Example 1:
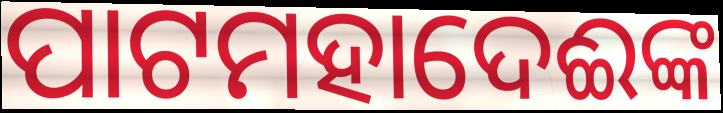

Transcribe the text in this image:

ପାଟମହାଦେଈଙ୍କ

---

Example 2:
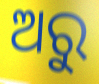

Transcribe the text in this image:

ଅରୁ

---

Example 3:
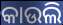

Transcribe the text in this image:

କାଉଲି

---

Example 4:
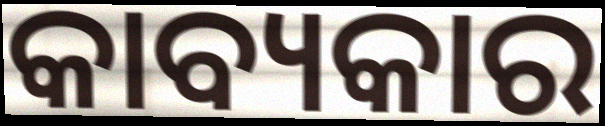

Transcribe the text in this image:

କାବ୍ୟକାର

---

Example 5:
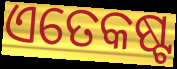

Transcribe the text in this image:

ଏତେକଷ୍ଟ